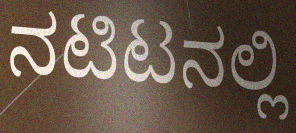
ನಟಿಟನಲ್ಲಿ